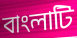
বাংলাটি